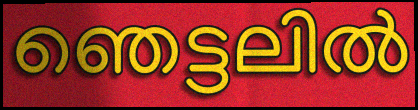
ഞെട്ടലിൽ